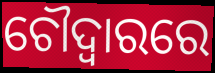
ଚୌଦ୍ୱାରରେ